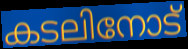
കടലിനോട്